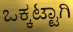
ಒಕ್ಕಟ್ಟಾಗಿ